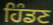
ਹਿੰਡਣ